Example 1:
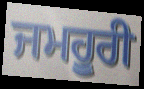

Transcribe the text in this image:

ਜਮਹੂਰੀ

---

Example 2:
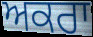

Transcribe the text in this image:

ਅਕਰਾ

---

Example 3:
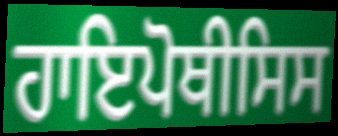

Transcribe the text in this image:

ਹਾਇਪੋਥੀਸਿਸ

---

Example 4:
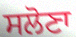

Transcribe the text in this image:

ਸਲੋਣਾ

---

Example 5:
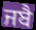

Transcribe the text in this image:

ਜਬੈ